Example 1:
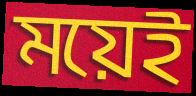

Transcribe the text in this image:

ময়েই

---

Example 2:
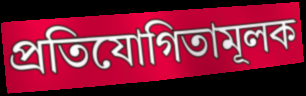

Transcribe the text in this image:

প্ৰতিযোগিতামূলক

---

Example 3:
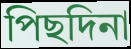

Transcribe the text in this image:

পিছদিনা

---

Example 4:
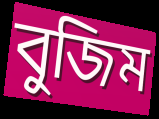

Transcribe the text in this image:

বুজিম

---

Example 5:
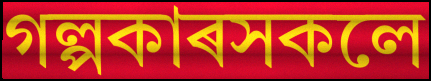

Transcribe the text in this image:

গল্পকাৰসকলে